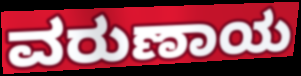
ವರುಣಾಯ